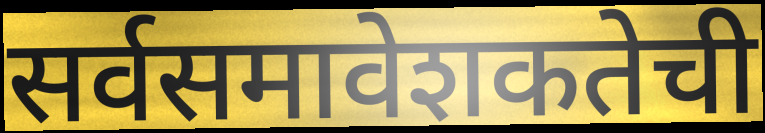
सर्वसमावेशकतेची